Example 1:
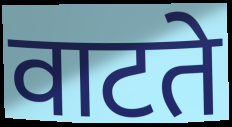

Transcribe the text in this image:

वाटते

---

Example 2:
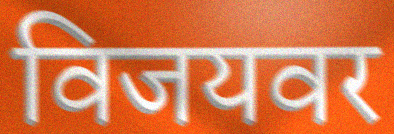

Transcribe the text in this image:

विजयवर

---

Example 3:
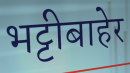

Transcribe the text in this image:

भट्टीबाहेर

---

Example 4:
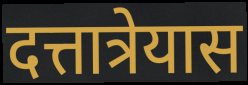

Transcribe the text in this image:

दत्तात्रेयास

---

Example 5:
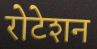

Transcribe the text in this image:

रोटेशन